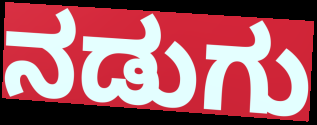
ನಡುಗು